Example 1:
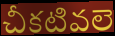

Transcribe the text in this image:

చీకటివలె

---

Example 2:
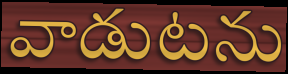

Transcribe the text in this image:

వాడుటను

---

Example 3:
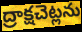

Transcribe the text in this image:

ద్రాక్షచెట్లను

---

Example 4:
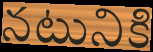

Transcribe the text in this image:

నటునికి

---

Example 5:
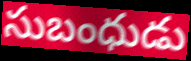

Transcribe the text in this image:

సుబంధుడు